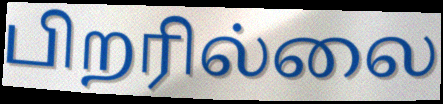
பிறரில்லை